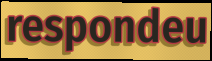
respondeu